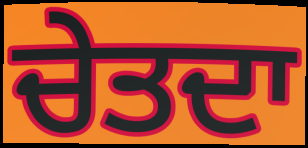
ਚੇਤਦਾ